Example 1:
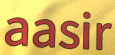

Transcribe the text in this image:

aasir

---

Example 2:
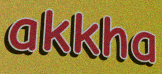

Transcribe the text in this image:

akkha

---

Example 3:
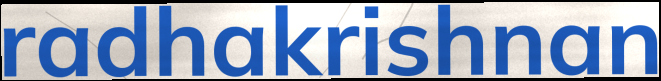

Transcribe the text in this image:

radhakrishnan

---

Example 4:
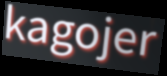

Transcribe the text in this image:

kagojer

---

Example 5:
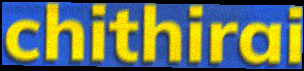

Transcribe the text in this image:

chithirai